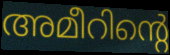
അമീറിന്റെ